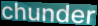
chunder